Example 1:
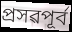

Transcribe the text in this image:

প্ৰসৱপূৰ্ব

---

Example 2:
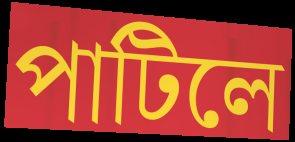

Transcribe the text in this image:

পাটিলে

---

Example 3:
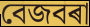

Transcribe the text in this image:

বেজবৰা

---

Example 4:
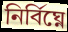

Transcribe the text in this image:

নিৰ্বিঘ্নে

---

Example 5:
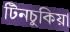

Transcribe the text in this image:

টিনচুকিয়া